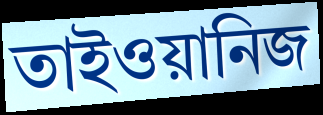
তাইওয়ানিজ